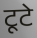
टूटे